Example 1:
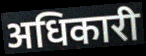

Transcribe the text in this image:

अधिकारी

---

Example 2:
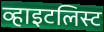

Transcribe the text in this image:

व्हाइटलिस्ट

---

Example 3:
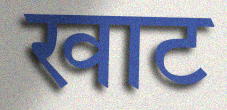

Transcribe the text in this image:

खाट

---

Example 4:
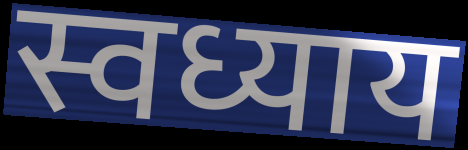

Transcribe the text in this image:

स्वध्याय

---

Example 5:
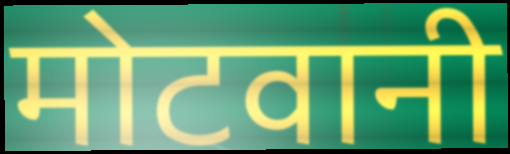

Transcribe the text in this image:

मोटवानी